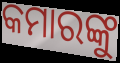
କମାରଙ୍କୁ